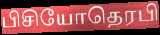
பிசியோதெரபி